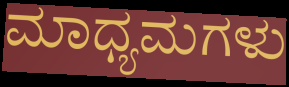
ಮಾಧ್ಯಮಗಳು